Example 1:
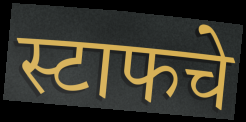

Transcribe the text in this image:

स्टाफचे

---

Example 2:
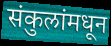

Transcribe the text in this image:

संकुलांमधून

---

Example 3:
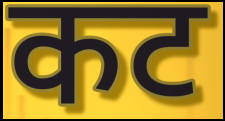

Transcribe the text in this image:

कट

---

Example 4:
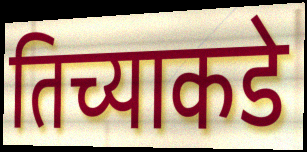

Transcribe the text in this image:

तिच्याकडे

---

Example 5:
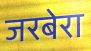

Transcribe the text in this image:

जरबेरा